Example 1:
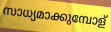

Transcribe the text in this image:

സാധ്യമാക്കുമ്പോള്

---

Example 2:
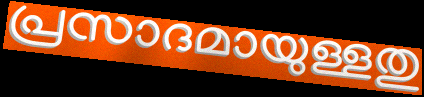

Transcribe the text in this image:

പ്രസാദമായുള്ളതു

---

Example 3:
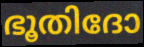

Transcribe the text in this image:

ഭൂതിദോ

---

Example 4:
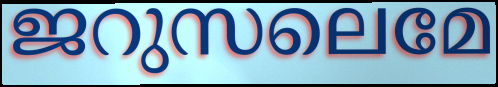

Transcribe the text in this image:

ജറുസലെമേ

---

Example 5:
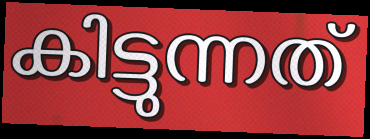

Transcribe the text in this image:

കിട്ടുന്നത്